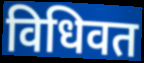
विधिवत